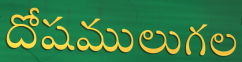
దోషములుగల